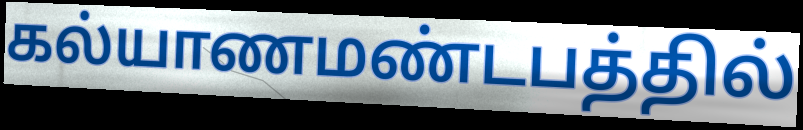
கல்யாணமண்டபத்தில்